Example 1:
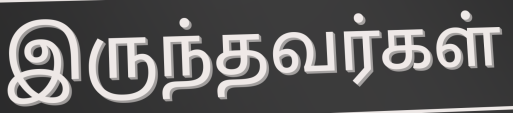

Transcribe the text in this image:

இருந்தவர்கள்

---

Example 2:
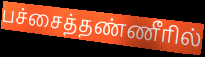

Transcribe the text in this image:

பச்சைத்தண்ணீரில்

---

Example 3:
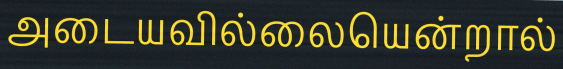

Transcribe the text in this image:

அடையவில்லையென்றால்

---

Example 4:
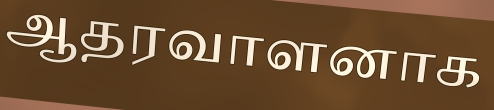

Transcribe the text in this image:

ஆதரவாளனாக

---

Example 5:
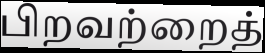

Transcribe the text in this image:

பிறவற்றைத்